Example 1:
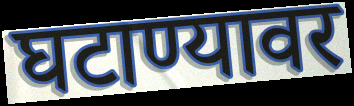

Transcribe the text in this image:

घटाण्यावर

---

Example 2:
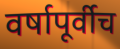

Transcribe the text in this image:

वर्षापूर्वीच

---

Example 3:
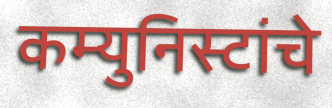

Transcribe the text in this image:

कम्युनिस्टांचे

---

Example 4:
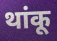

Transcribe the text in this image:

थांकू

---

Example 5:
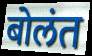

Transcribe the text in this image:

बोलंत